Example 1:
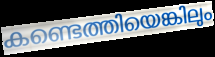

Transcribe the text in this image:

കണ്ടെത്തിയെങ്കിലും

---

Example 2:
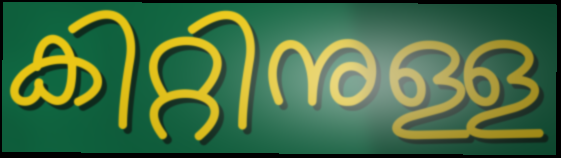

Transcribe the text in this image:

കിറ്റിനുള്ള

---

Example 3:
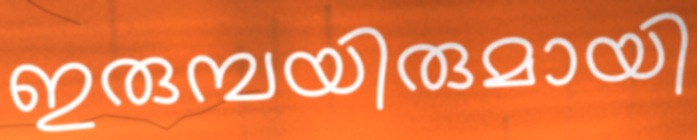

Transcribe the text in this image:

ഇരുമ്പയിരുമായി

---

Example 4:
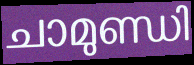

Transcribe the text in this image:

ചാമുണ്ഡി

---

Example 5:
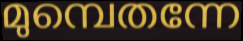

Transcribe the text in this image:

മുമ്പെതന്നേ